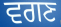
ਵਗਣ